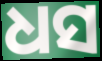
ଧସ